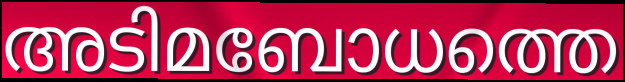
അടിമബോധത്തെ